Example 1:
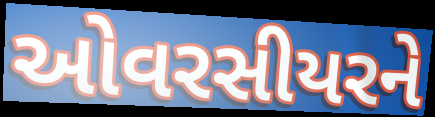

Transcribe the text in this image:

ઓવરસીયરને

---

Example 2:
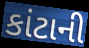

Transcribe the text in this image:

કાંટાની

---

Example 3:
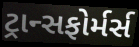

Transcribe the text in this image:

ટ્રાન્સફોર્મર્સ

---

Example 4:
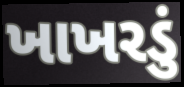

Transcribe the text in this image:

ખાખરડું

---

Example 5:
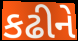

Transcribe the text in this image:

કઢીને